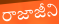
రాజాజీని